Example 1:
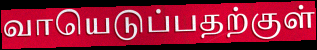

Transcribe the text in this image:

வாயெடுப்பதற்குள்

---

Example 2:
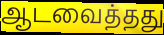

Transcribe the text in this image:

ஆடவைத்தது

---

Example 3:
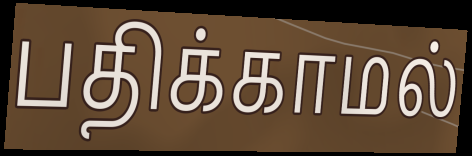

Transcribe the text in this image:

பதிக்காமல்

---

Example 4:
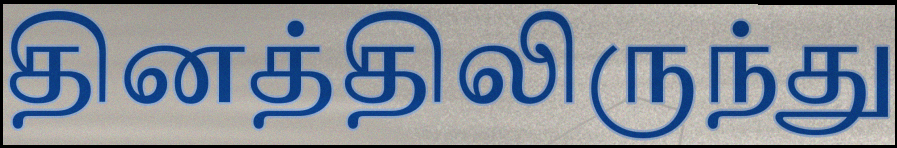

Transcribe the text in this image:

தினத்திலிருந்து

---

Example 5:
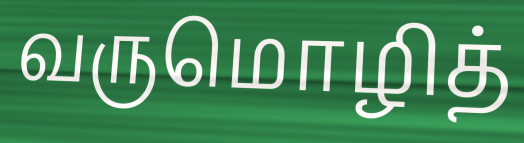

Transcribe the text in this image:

வருமொழித்